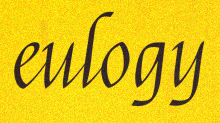
eulogy